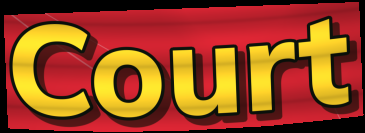
Court